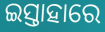
ଇସ୍ତାହାରେ